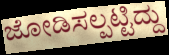
ಜೋಡಿಸಲ್ಪಟ್ಟಿದ್ದು